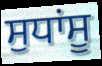
ਸੁਧਾਂਸੂ